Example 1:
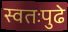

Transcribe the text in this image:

स्वतःपुढे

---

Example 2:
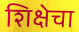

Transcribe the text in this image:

शिक्षेचा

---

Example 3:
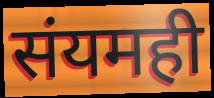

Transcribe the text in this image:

संयमही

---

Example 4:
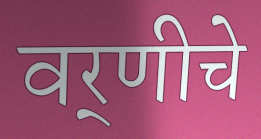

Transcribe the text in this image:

वर्णीचे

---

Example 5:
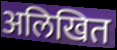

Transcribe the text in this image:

अलिखित